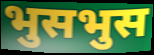
भुसभुस